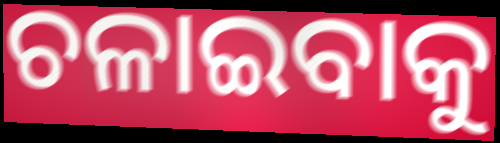
ଚଳାଇବାକୁ